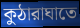
কুঠারাঘাতে